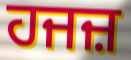
ਹਜਜ਼